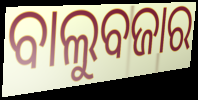
ବାଲୁବଜାର